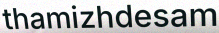
thamizhdesam